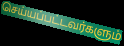
செய்யப்பட்டவர்களும்